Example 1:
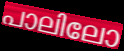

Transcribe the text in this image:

പാലിലോ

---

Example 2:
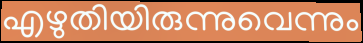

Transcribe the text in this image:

എഴുതിയിരുന്നുവെന്നും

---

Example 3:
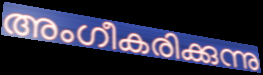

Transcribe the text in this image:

അംഗീകരിക്കുന്നു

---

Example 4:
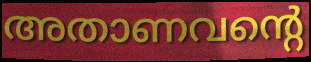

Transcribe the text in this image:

അതാണവന്റെ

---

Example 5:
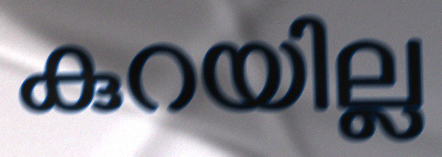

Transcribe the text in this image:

കുറയില്ല